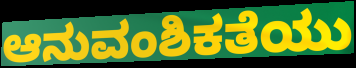
ಆನುವಂಶಿಕತೆಯು